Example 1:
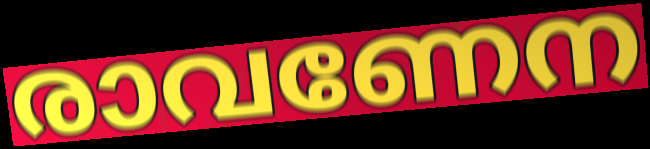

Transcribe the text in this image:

രാവണേന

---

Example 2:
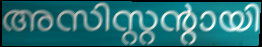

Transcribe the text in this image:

അസിസ്റ്റന്റായി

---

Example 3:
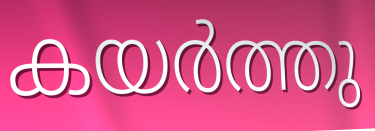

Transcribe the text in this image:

കയർത്തു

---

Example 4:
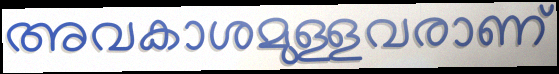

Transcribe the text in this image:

അവകാശമുള്ളവരാണ്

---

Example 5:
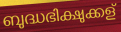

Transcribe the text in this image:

ബുദ്ധഭിക്ഷുക്കള്